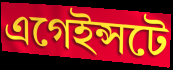
এগেইন্সটে